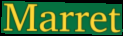
Marret